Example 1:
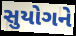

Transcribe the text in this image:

સુયોગને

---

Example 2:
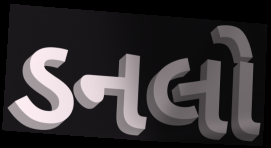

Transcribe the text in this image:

ડનલો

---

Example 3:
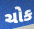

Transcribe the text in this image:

ચોક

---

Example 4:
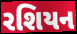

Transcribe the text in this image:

રશિયન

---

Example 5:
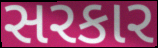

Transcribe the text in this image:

સરકાર